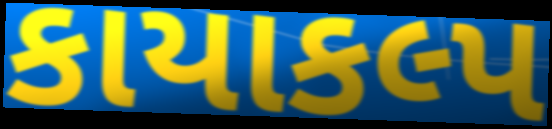
કાયાકલ્પ